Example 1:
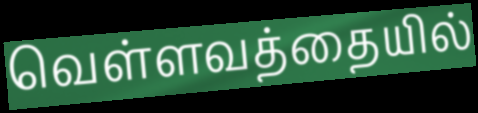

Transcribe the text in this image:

வெள்ளவத்தையில்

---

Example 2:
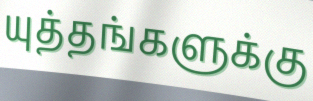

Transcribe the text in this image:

யுத்தங்களுக்கு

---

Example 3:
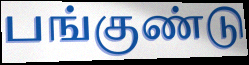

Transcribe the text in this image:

பங்குண்டு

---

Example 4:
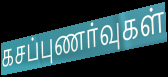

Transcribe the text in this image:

கசப்புணர்வுகள்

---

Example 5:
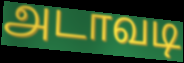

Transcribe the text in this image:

அடாவடி